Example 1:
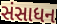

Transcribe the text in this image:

સંસાધન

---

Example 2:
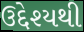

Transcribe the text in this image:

ઉદ્દેશ્યથી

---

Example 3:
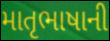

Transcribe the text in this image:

માતૃભાષાની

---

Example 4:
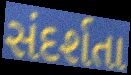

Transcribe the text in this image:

સંદર્શતા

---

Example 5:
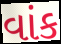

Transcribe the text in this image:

વાંક